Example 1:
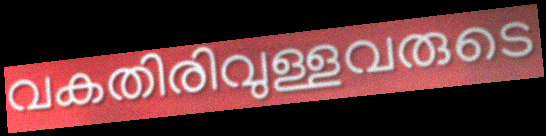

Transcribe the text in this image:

വകതിരിവുള്ളവരുടെ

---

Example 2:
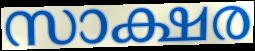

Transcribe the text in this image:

സാക്ഷര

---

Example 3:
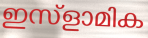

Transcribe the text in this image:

ഇസ്ളാമിക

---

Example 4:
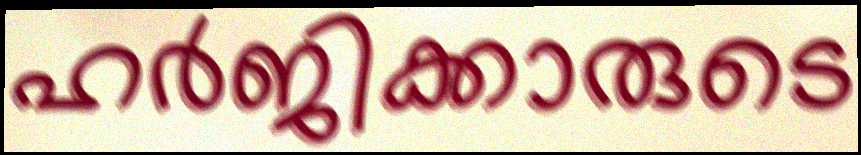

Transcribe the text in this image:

ഹർജിക്കാരുടെ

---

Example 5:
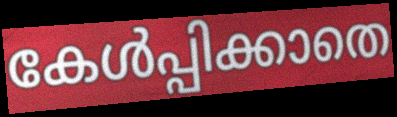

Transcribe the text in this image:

കേൾപ്പിക്കാതെ